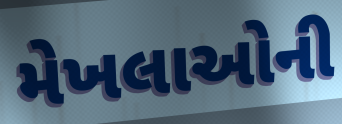
મેખલાઓની